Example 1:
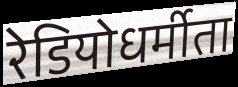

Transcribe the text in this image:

रेडियोधर्मीता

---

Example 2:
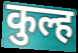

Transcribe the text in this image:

कुल्ह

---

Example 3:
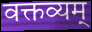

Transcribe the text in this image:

वक्तव्यम्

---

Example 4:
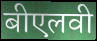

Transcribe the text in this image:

बीएलवी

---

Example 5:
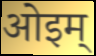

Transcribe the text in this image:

ओइम्